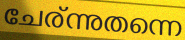
ചേര്ന്നുതന്നെ